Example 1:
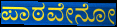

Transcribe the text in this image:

ಪಾಠವೇನೋ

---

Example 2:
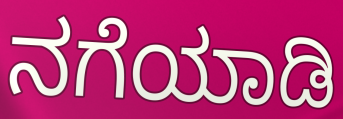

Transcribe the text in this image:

ನಗೆಯಾಡಿ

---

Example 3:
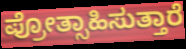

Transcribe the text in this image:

ಪ್ರೋತ್ಸಾಹಿಸುತ್ತಾರೆ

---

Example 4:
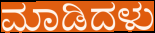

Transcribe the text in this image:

ಮಾಡಿದಳು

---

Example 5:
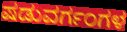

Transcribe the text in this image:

ಷಡುವರ್ಗಂಗಳ